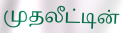
முதலீட்டின்